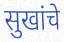
सुखांचे